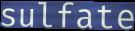
sulfate